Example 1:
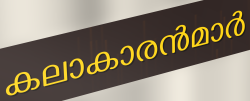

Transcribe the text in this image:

കലാകാരൻമാർ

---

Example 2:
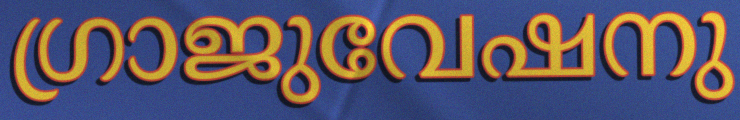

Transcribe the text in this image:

ഗ്രാജുവേഷനു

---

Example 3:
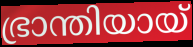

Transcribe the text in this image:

ഭ്രാന്തിയായ്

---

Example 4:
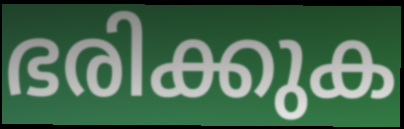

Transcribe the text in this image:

ഭരിക്കുക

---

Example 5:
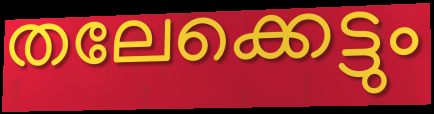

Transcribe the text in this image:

തലേക്കെട്ടും